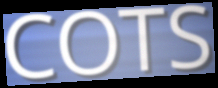
COTS